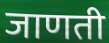
जाणती